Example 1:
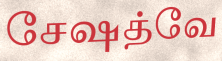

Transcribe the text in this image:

சேஷத்வே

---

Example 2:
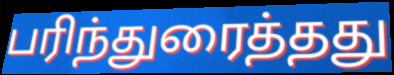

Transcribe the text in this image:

பரிந்துரைத்தது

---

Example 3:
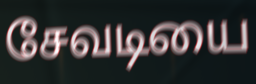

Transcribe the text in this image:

சேவடியை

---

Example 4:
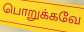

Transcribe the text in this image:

பொறுக்கவே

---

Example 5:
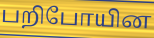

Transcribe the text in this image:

பறிபோயின